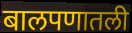
बालपणातली